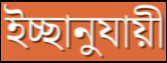
ইচ্ছানুযায়ী